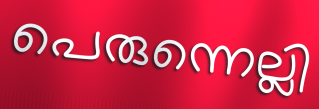
പെരുന്നെല്ലി